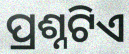
ପ୍ରଶ୍ନଟିଏ